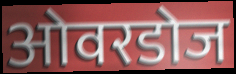
ओवरडोज